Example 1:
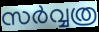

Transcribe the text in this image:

സർവ്വത്ര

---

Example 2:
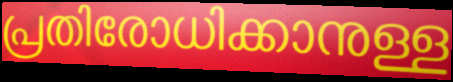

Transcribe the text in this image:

പ്രതിരോധിക്കാനുള്ള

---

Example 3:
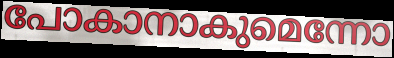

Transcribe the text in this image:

പോകാനാകുമെന്നോ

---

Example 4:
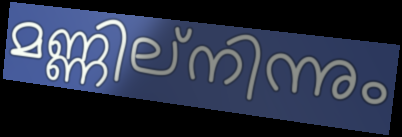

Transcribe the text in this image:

മണ്ണില്നിന്നും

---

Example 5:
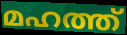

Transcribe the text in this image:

മഹത്ത്